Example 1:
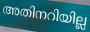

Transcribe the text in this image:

അതിനറിയില്ല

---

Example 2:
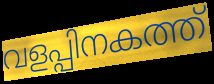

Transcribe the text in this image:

വളപ്പിനകത്ത്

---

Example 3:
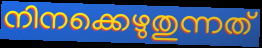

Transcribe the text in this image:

നിനക്കെഴുതുന്നത്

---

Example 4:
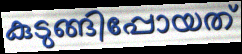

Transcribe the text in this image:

കുടുങ്ങിപ്പോയത്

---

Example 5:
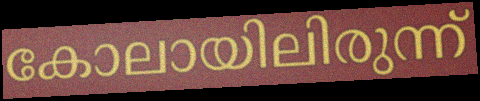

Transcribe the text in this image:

കോലായിലിരുന്ന്